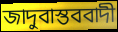
জাদুবাস্তববাদী